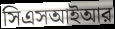
সিএসআইআর